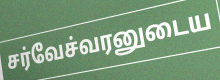
சர்வேச்வரனுடைய